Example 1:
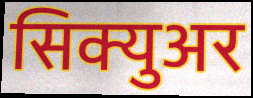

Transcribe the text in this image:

सिक्युअर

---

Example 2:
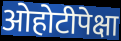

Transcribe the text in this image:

ओहोटीपेक्षा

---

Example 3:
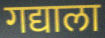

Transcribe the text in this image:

गद्याला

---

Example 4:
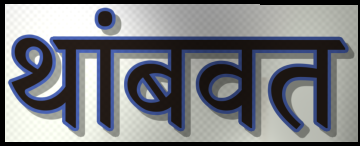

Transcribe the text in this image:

थांबवत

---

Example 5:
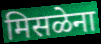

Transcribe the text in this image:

मिसळेना